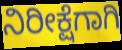
ನಿರೀಕ್ಷೆಗಾಗಿ